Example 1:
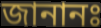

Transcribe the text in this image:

জানানঃ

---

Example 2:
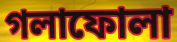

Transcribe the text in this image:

গলাফোলা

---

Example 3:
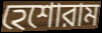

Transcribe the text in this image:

হেশোরাম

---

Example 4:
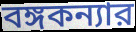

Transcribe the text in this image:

বঙ্গকন্যার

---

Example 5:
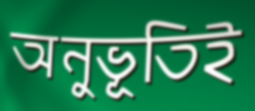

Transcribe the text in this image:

অনুভূতিই